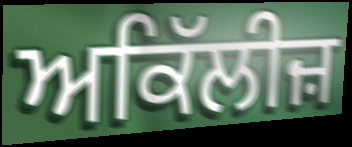
ਅਕਿੱਲੀਜ਼